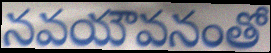
నవయౌవనంతో